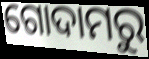
ଗୋଦାମରୁ